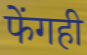
फेंगही